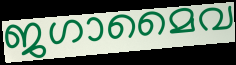
ജഗാമൈവ